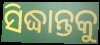
ସିଦ୍ଧାନ୍ତକୁ